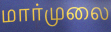
மார்முலை